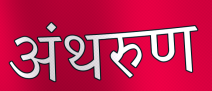
अंथरुण